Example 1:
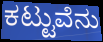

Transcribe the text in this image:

ಕಟ್ಟುವೆನು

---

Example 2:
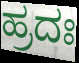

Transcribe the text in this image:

ಹ್ರದಃ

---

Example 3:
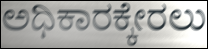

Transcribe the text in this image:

ಅಧಿಕಾರಕ್ಕೇರಲು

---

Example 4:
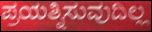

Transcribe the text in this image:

ಪ್ರಯತ್ನಿಸುವುದಿಲ್ಲ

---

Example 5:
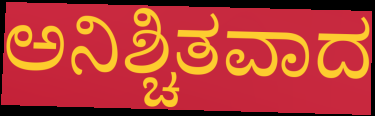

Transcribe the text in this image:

ಅನಿಶ್ಚಿತವಾದ